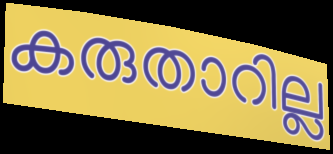
കരുതാറില്ല